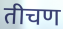
तीचण